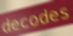
decodes